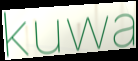
kuwa